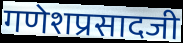
गणेशप्रसादजी